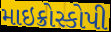
માઇક્રોસ્કોપી